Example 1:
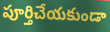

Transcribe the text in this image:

పూర్తిచేయకుండా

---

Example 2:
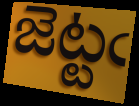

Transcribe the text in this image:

జెట్టఁ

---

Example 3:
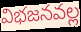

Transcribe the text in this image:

విభజనవల్ల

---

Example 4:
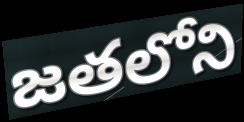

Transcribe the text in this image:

జతలోని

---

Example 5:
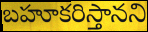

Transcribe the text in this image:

బహూకరిస్తానని